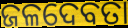
ଜଳଦେବତା